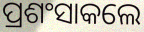
ପ୍ରଶଂସାକଲେ